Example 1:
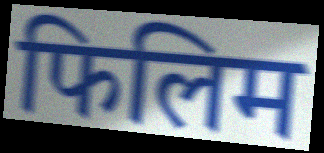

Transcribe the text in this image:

फिलिम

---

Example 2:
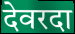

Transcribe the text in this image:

देवरदा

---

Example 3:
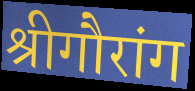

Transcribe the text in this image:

श्रीगौरांग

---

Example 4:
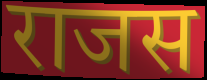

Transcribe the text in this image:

राजस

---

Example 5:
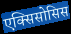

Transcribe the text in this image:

एक्सिसोसिस